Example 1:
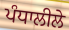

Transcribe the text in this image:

ਪੰਧਾਲੀਲੇ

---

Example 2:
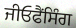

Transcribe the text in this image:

ਜੀਓਫੈਂਸਿੰਗ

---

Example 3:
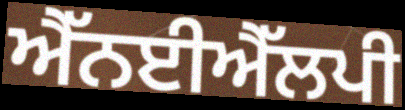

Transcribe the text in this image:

ਐੱਨਈਐੱਲਪੀ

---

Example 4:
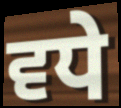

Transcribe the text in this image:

ਵਧੇ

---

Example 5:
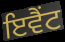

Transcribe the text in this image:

ਇਵੈਂਟ